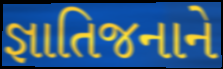
જ્ઞાતિજનાને